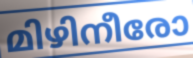
മിഴിനീരോ